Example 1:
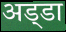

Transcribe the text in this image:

अड्‍डा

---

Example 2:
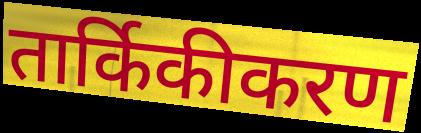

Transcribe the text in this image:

तार्किकीकरण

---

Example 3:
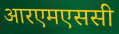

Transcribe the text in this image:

आरएमएससी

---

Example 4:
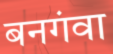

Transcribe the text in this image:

बनगंवा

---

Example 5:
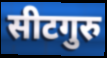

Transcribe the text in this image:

सीटगुरु